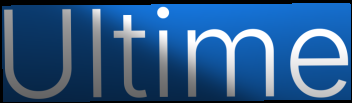
Ultime